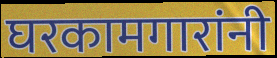
घरकामगारांनी